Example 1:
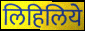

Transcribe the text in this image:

लिहिलिये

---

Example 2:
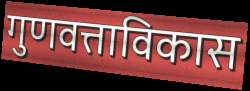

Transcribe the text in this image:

गुणवत्ताविकास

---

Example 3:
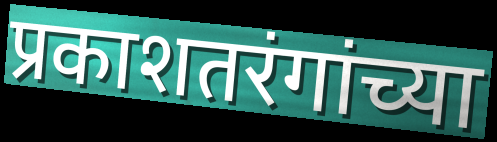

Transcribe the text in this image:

प्रकाशतरंगांच्या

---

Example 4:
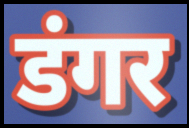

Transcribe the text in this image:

डंगर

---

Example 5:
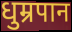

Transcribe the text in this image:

धुम्रपान